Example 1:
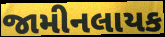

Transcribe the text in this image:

જામીનલાયક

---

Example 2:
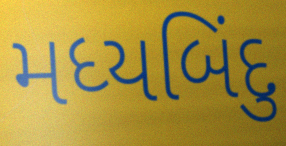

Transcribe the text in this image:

મધ્યબિંદુ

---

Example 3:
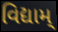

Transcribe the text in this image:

વિદ્યામ્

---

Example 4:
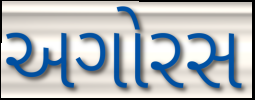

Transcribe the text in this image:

અગોરસ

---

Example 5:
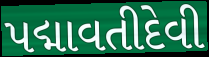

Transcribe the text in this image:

પદ્માવતીદેવી